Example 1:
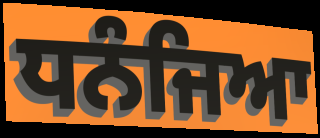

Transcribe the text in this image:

ਧਨੰਜਿਆ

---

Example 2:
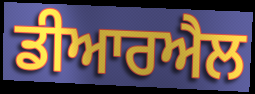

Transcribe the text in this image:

ਡੀਆਰਐਲ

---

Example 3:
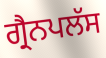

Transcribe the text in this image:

ਗ੍ਰੈਨਪਲੱਸ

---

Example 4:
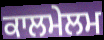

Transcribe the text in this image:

ਕਾਲਮੇਲਮ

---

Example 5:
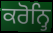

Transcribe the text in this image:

ਕਰੋਨ੍ਤਿ